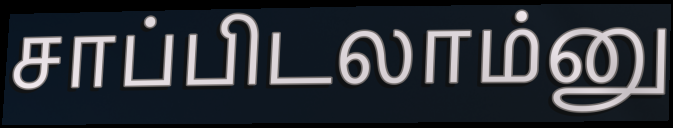
சாப்பிடலாம்னு